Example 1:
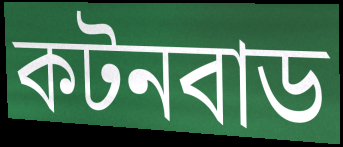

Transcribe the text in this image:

কটনবাড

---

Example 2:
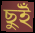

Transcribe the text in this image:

ছুইঁ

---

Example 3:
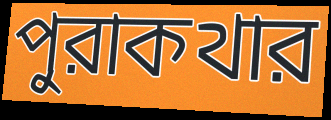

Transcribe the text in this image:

পুরাকথার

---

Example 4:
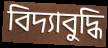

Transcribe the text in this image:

বিদ্যাবুদ্ধি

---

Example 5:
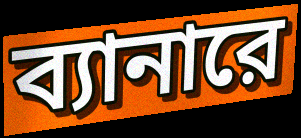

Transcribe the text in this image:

ব্যানারে